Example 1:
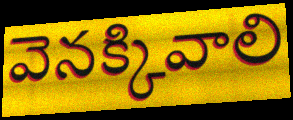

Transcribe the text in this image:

వెనక్కివాలి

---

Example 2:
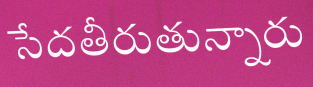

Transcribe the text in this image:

సేదతీరుతున్నారు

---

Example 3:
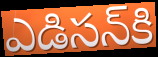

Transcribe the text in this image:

ఎడిసన్‌కి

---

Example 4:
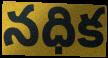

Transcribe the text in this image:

నధిక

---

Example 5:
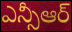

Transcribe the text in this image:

ఎన్సీఆర్